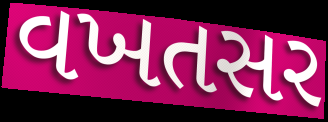
વખતસર